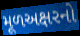
મૂળઅક્ષરનો